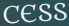
CESS